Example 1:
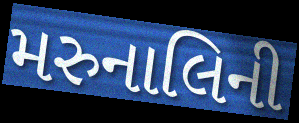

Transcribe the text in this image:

મરુનાલિની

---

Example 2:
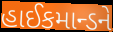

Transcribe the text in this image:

હાઈકમાન્ડને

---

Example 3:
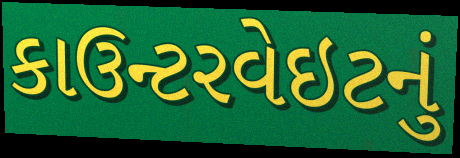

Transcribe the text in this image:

કાઉન્ટરવેઇટનું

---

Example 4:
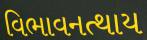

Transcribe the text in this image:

વિભાવનત્થાય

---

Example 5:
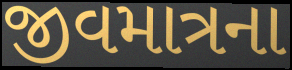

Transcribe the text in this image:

જીવમાત્રના